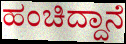
ಹಂಚಿದ್ದಾನೆ